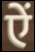
ऐं